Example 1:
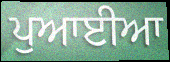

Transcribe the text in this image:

ਪੁਆਈਆ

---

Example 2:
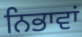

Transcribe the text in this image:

ਨਿਭਾਵਾਂ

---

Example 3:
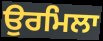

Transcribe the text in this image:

ਉਰਮਿਲਾ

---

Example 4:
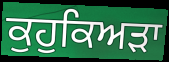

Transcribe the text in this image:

ਕੁਹੁਕਿਅੜਾ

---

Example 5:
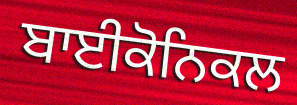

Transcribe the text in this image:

ਬਾਈਕੋਨਿਕਲ